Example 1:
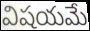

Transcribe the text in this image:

విషయమే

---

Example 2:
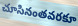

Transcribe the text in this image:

చూసినంతవరకూ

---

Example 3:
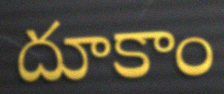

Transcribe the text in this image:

దూకాం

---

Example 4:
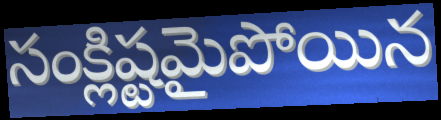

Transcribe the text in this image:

సంక్లిష్టమైపోయిన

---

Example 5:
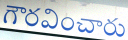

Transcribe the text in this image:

గౌరవించారు